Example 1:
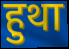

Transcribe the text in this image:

हुथा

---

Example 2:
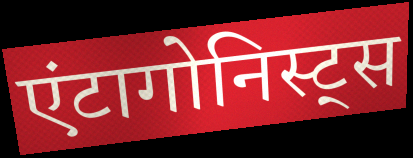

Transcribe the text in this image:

एंटागोनिस्ट्स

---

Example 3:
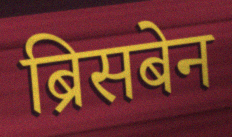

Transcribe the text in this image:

ब्रिसबेन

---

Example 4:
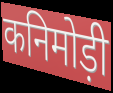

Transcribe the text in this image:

कनिमोड़ी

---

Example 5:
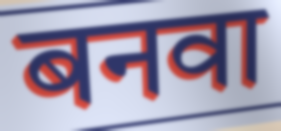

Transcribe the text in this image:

बनवा